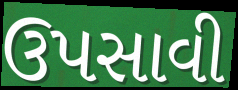
ઉપસાવી